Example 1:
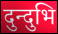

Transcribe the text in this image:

दुन्दुभि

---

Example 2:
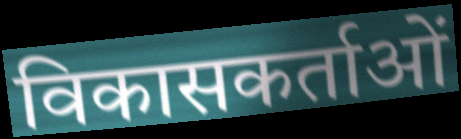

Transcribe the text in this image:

विकासकर्ताओं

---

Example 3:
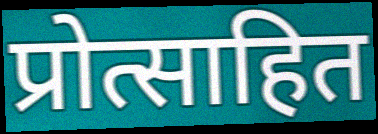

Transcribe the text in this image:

प्रोत्साहित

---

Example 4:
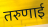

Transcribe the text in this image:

तरुणाई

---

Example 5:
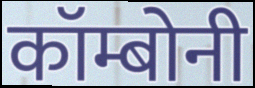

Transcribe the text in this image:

कॉम्बोनी